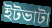
ইটভাটা